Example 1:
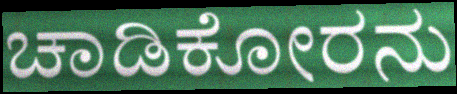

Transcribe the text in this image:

ಚಾಡಿಕೋರನು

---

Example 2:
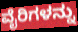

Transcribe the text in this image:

ವೈರಿಗಳನ್ನು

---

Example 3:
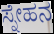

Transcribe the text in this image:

ಸ್ನೇಹನ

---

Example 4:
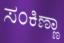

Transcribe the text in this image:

ಸಂಕಿಣ್ಣಾ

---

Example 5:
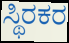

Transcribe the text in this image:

ಸ್ಥಿರಕರ